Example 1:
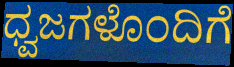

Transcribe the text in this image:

ಧ್ವಜಗಳೊಂದಿಗೆ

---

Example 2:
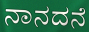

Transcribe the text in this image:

ನಾನದನೆ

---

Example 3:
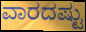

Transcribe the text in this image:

ವಾರದಷ್ಟು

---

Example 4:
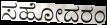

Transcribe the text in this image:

ಸಹೋದರಂ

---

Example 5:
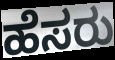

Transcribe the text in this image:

ಹೆಸರು